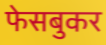
फेसबुकर